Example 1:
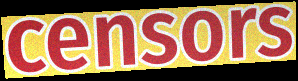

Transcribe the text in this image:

censors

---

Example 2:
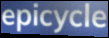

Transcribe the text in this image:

epicycle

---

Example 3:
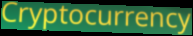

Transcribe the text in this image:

Cryptocurrency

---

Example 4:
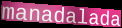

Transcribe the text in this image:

manadalada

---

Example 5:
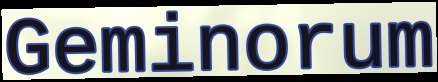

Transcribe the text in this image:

Geminorum